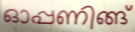
ഓപ്പണിങ്ങ്